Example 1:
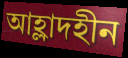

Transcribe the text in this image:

আহ্লাদহীন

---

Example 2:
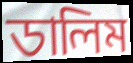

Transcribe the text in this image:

ডালিম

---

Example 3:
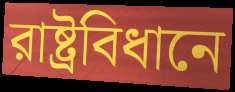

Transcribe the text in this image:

রাষ্ট্রবিধানে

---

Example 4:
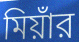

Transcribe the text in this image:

মিয়াঁর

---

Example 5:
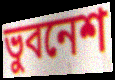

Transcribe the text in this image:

ভুবনেশ